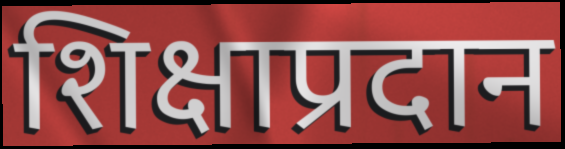
शिक्षाप्रदान